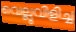
വെല്ലുവിളിച്ച